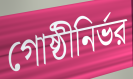
গোষ্ঠীনির্ভর